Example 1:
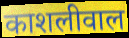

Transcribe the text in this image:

काशलीवाल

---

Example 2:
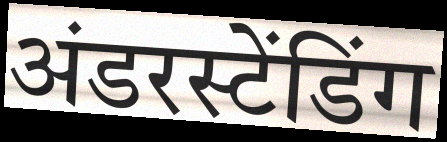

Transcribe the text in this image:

अंडरस्टेंडिंग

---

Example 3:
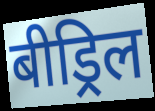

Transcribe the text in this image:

बीड्रिल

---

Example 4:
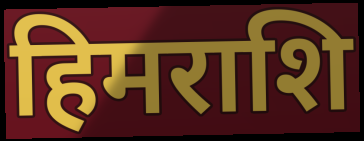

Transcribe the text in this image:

हिमराशि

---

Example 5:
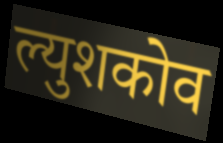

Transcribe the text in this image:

ल्युशकोव